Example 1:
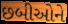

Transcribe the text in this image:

છબીઓને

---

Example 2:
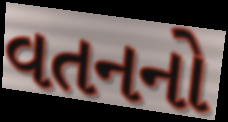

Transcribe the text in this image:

વતનનો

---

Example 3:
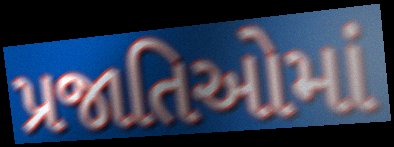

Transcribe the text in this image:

પ્રજાતિઓમાં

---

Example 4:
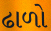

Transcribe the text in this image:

ઢાળો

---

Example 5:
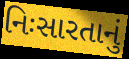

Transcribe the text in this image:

નિઃસારતાનું